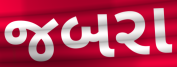
જબરા